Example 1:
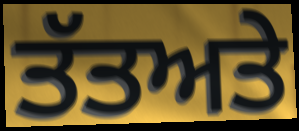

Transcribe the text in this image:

ਤੱਤਅਤੇ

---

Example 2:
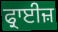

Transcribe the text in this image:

ਫ੍ਰਾਈਜ਼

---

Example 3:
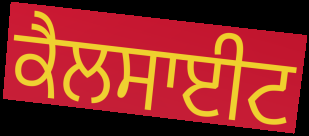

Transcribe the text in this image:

ਕੈਲਸਾਈਟ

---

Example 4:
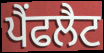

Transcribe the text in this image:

ਪੈਂਫਲੈਟ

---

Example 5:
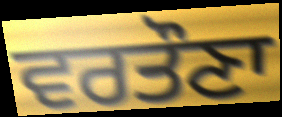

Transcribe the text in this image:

ਵਰਤੌਣਾ